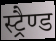
स्ट्रैण्ड